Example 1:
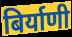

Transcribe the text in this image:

बिर्याणी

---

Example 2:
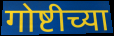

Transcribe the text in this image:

गोष्टीच्या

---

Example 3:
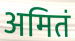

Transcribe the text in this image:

अमितं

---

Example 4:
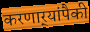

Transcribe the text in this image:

करणार्यांपैकी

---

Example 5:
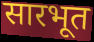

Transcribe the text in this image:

सारभूत